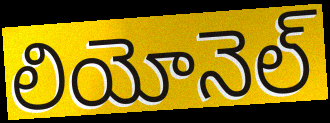
లియోనెల్